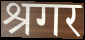
श्रगर